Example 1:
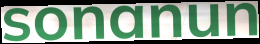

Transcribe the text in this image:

sonanun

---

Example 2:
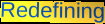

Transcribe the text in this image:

Redefining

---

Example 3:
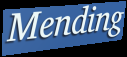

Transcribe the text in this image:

Mending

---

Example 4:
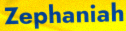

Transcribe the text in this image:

Zephaniah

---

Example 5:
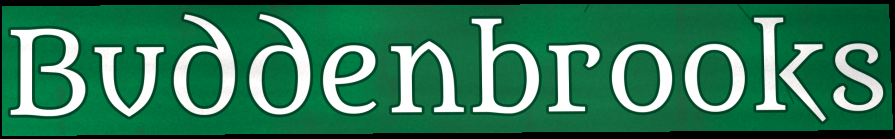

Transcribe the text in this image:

Buddenbrooks